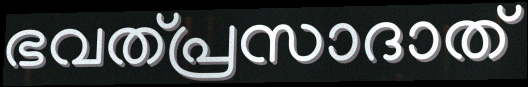
ഭവത്പ്രസാദാത്